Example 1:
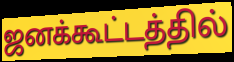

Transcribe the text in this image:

ஜனக்கூட்டத்தில்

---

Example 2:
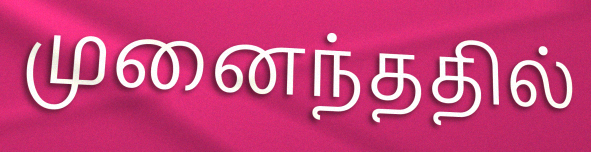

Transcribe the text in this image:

முனைந்ததில்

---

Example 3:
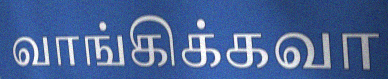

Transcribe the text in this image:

வாங்கிக்கவா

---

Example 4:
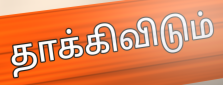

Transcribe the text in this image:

தாக்கிவிடும்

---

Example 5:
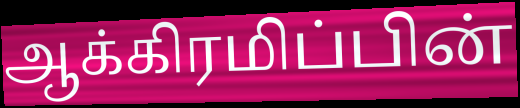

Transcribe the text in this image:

ஆக்கிரமிப்பின்